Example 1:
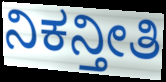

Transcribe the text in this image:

ನಿಕನ್ತೀತಿ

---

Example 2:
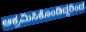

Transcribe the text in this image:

ಆಕ್ರಮಿಸಿಕೊಂಡಿದ್ದರಿಂದ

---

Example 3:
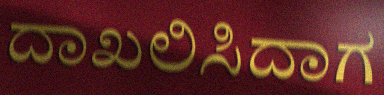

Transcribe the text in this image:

ದಾಖಲಿಸಿದಾಗ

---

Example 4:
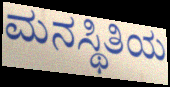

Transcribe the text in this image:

ಮನಸ್ಥಿತಿಯ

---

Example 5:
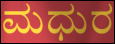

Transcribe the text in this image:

ಮಧುರ